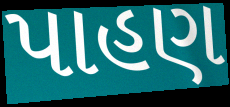
પાહણ